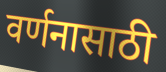
वर्णनासाठी